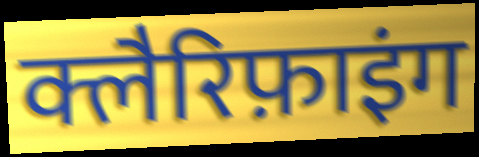
क्लैरिफ़ाइंग